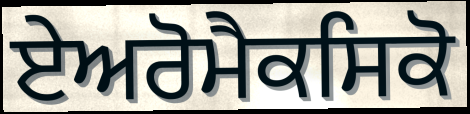
ਏਅਰੋਮੈਕਸਿਕੋ